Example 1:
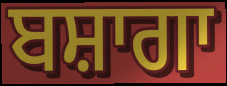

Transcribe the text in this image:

ਬਸ਼ਾਗਾ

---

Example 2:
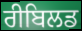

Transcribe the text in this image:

ਰੀਬਿਲਡ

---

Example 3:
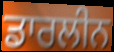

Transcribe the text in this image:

ਡਾਰਲੀਨ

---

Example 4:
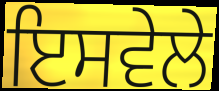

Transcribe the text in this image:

ਇਸਵੇਲੇ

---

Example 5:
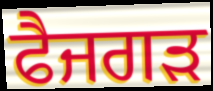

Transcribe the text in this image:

ਫੈਜਗੜ